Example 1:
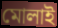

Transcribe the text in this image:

মোলাই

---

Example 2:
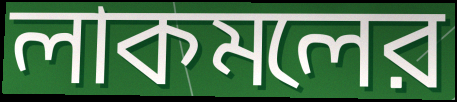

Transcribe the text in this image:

লাকমলের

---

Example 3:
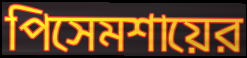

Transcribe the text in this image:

পিসেমশায়ের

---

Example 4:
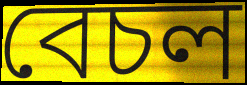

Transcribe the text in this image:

বেচল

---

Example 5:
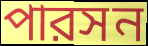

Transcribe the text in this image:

পারসন